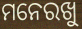
ମନେରଖୁ